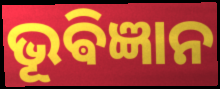
ଭୂଵିଜ୍ଞାନ